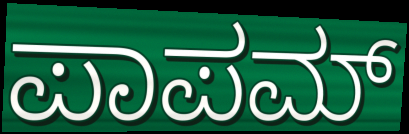
ಪಾಪಮ್